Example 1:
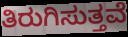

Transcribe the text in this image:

ತಿರುಗಿಸುತ್ತವೆ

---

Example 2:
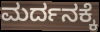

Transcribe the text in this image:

ಮರ್ದನಕ್ಕೆ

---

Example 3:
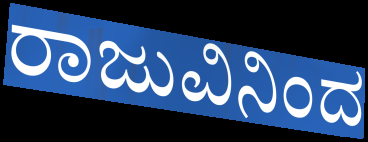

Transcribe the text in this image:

ರಾಜುವಿನಿಂದ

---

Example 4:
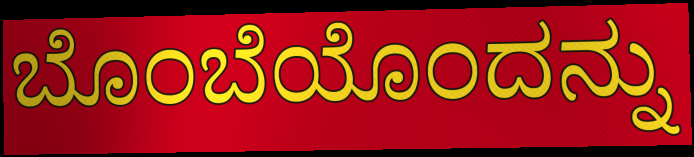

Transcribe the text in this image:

ಬೊಂಬೆಯೊಂದನ್ನು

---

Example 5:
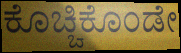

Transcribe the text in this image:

ಕೊಚ್ಚಿಕೊಂಡೇ